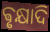
ଵୃକ୍ଷାଦି